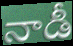
నాడీ